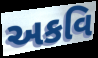
અકવિ